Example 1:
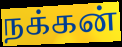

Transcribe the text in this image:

நக்கன்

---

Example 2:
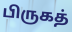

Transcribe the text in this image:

பிருகத்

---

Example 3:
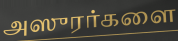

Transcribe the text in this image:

அஸுரர்களை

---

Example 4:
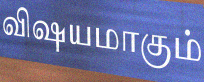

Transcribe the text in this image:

விஷயமாகும்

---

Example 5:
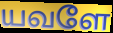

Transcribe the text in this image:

யவளே